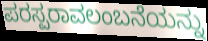
ಪರಸ್ಪರಾವಲಂಬನೆಯನ್ನು